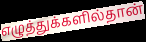
எழுத்துக்களில்தான்